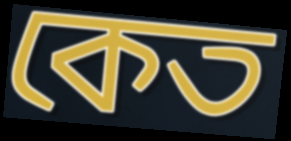
কেত